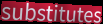
substitutes